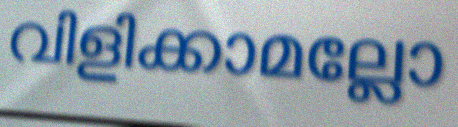
വിളിക്കാമല്ലോ